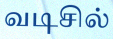
வடிசில்